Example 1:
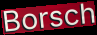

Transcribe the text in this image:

Borsch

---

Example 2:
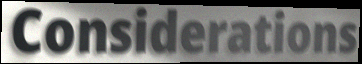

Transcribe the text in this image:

Considerations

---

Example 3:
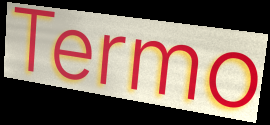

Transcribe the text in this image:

Termo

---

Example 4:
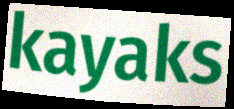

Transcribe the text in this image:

kayaks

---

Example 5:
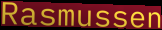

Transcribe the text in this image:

Rasmussen